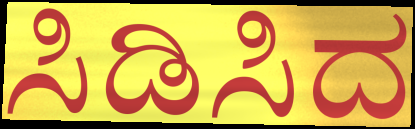
ಸಿಡಿಸಿದ